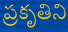
ప్రకృతిని